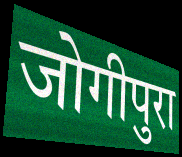
जोगीपुरा